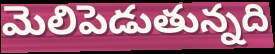
మెలిపెడుతున్నది